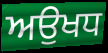
ਅਉਖਧ